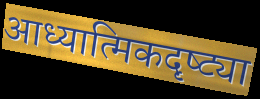
आध्यात्मिकदृष्ट्या